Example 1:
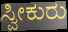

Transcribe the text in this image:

ಸ್ವೀಕುರು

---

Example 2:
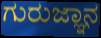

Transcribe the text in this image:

ಗುರುಜ್ಞಾನ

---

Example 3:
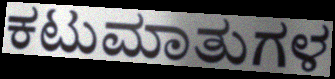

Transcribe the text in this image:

ಕಟುಮಾತುಗಳ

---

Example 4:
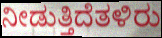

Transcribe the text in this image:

ನೀಡುತ್ತಿದೆತಳಿರು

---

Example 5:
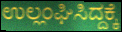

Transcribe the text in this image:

ಉಲ್ಲಂಘಿಸಿದ್ದಕ್ಕೆ